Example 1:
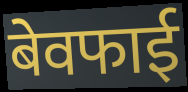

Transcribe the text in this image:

बेवफाई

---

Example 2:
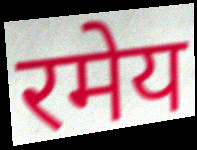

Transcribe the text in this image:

रमेय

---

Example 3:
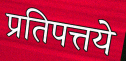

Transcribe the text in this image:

प्रतिपत्तये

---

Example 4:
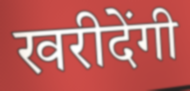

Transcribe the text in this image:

खरीदेंगी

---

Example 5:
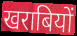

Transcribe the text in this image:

खराबियों